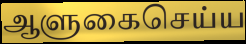
ஆளுகைசெய்ய